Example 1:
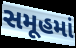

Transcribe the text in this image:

સમૂહમાં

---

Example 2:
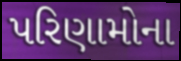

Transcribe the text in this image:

પરિણામોના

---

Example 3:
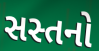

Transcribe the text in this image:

સસ્તનો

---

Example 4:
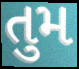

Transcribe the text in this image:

તુમ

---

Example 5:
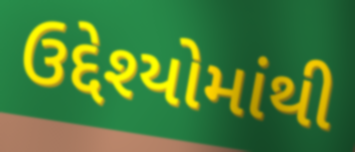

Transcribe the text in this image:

ઉદ્દેશ્યોમાંથી